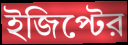
ইজিপ্টের